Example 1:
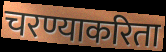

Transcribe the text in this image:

चरण्याकरिता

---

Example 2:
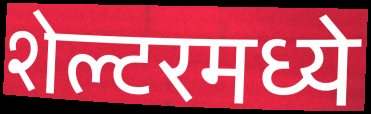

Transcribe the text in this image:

शेल्टरमध्ये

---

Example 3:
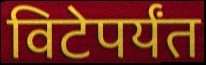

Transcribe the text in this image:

विटेपर्यंत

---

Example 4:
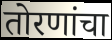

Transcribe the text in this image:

तोरणांचा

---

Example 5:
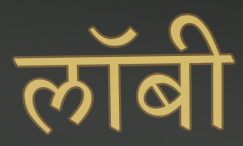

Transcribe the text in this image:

लॉबी